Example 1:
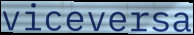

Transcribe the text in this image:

viceversa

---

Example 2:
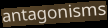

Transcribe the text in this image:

antagonisms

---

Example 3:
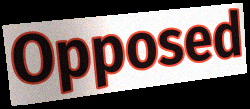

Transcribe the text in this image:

Opposed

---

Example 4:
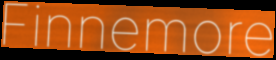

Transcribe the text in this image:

Finnemore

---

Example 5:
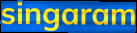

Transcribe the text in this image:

singaram